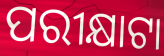
ପରୀକ୍ଷାଟା